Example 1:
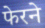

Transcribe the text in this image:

फेरने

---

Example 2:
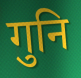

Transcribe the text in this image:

गुनि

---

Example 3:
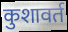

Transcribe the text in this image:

कुशावर्त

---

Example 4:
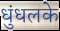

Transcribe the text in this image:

धुंधलके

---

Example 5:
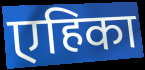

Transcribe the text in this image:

एहिका